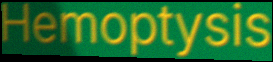
Hemoptysis